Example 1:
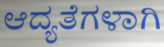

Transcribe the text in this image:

ಆದ್ಯತೆಗಳಾಗಿ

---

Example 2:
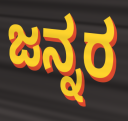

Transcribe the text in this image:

ಜನ್ನರ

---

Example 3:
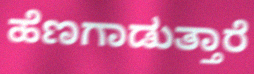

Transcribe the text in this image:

ಹೆಣಗಾಡುತ್ತಾರೆ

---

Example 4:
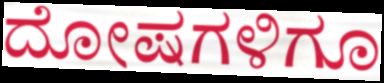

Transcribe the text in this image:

ದೋಷಗಳಿಗೂ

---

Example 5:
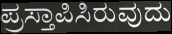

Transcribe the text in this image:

ಪ್ರಸ್ತಾಪಿಸಿರುವುದು